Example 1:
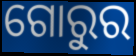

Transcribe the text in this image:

ଗୋରୁର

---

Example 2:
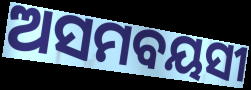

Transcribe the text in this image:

ଅସମବୟସୀ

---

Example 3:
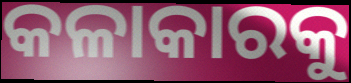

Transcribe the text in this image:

କଳାକାରକୁ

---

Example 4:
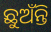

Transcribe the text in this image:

ଛୁଅଁନ୍ତି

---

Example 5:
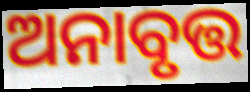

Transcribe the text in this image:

ଅନାବୃତ୍ତ